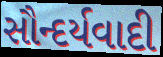
સૌન્દર્યવાદી